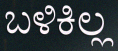
ಬಳಿಕಿಲ್ಲ